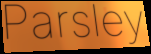
Parsley